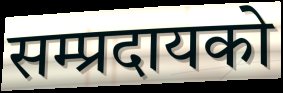
सम्प्रदायको